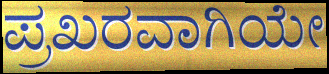
ಪ್ರಖರವಾಗಿಯೇ